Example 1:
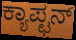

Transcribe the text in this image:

ಕ್ಯಾಪ್ಟನ್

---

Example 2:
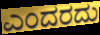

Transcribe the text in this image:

ಎಂದರದು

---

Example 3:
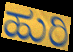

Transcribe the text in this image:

ಹುರಿ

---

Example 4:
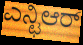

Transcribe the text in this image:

ಎನ್ಟಿಆರ್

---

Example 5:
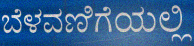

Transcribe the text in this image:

ಬೆಳವಣಿಗೆಯಲ್ಲಿ